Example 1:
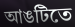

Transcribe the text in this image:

আঙটিতে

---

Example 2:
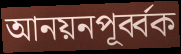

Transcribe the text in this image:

আনয়নপূর্ব্বক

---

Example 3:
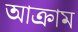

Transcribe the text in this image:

আক্রাম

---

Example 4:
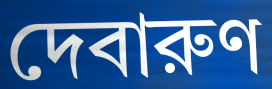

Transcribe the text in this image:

দেবারুণ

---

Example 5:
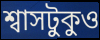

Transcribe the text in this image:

শ্বাসটুকুও